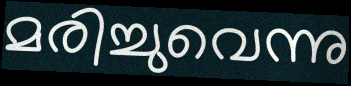
മരിച്ചുവെന്നു